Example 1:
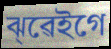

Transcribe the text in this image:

ঝ্ৱেইগে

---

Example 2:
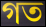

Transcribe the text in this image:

গত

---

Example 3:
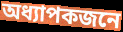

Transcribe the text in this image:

অধ্যাপকজনে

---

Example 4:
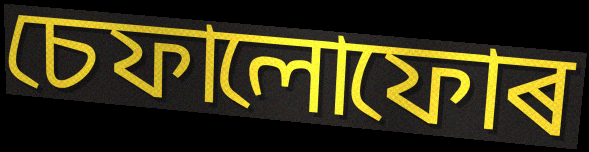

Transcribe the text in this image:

চেফালোফোৰ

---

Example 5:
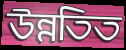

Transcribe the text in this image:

উন্নতিত